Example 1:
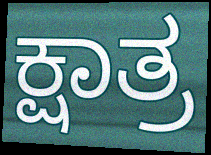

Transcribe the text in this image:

ಕ್ಷಾತ್ರ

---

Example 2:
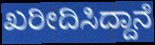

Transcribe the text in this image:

ಖರೀದಿಸಿದ್ದಾನೆ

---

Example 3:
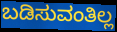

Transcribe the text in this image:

ಬಡಿಸುವಂತಿಲ್ಲ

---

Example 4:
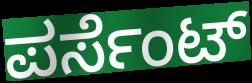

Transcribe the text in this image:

ಪರ್ಸೆಂಟ್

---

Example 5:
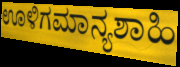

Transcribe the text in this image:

ಊಳಿಗಮಾನ್ಯಶಾಹಿ